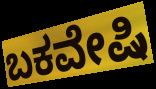
ಬಕವೇಷಿ